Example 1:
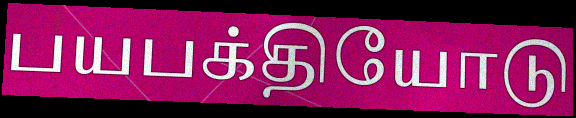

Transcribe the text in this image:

பயபக்தியோடு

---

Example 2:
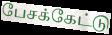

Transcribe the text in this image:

பேசக்கேட்டு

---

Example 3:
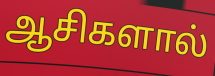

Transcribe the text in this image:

ஆசிகளால்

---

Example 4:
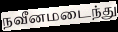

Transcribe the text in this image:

நவீனமடைந்து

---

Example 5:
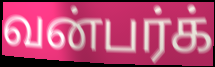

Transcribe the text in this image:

வன்பர்க்